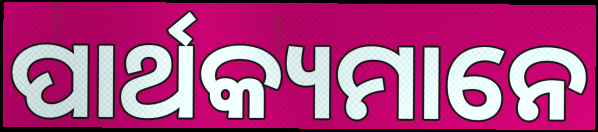
ପାର୍ଥକ୍ୟମାନେ